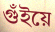
গুঁইয়ে